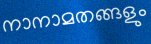
നാനാമതങ്ങളും